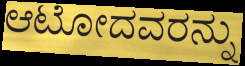
ಆಟೋದವರನ್ನು